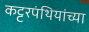
कट्टरपंथियांच्या